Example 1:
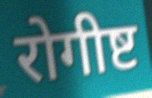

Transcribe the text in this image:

रोगीष्ट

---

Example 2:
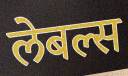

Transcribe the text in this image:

लेबल्स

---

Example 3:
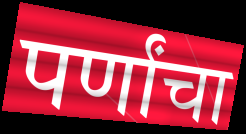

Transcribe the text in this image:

पर्णांचा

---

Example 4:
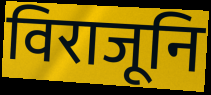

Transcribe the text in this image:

विराजूनि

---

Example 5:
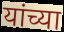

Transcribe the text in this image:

यांच्या